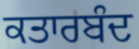
ਕਤਾਰਬੰਦ